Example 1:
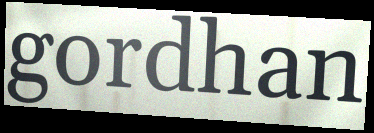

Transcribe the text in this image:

gordhan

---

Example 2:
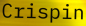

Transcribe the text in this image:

Crispin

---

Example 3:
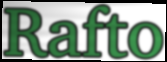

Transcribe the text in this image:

Rafto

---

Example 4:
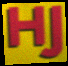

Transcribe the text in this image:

HJ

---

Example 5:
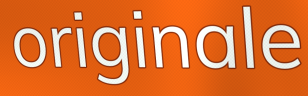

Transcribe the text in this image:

originale